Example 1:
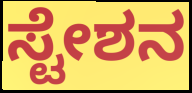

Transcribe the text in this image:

ಸ್ಟೇಶನ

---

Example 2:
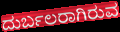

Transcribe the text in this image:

ದುರ್ಬಲರಾಗಿರುವ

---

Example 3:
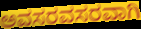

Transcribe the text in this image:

ಅವಸರವಸರವಾಗಿ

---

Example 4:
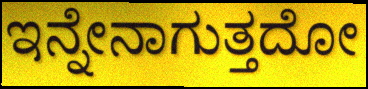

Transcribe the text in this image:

ಇನ್ನೇನಾಗುತ್ತದೋ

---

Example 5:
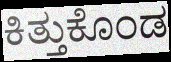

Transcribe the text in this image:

ಕಿತ್ತುಕೊಂಡ